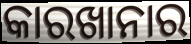
କାରଖାନାର